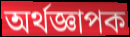
অর্থজ্ঞাপক